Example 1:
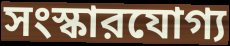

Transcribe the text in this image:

সংস্কারযোগ্য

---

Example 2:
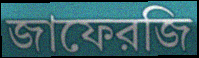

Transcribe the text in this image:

জাফেরজি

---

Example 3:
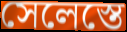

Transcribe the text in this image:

সেলেস্তে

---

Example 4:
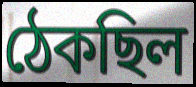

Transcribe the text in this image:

ঠেকছিল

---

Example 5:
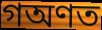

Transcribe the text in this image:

গঅণত